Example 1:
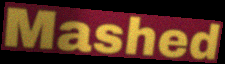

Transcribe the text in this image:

Mashed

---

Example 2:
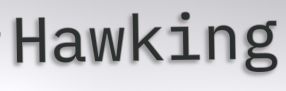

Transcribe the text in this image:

Hawking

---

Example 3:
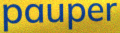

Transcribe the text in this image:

pauper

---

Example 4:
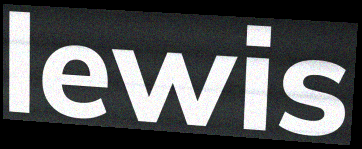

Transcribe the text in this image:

lewis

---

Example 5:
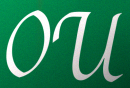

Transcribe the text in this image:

OU